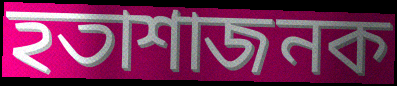
হতাশাজনক